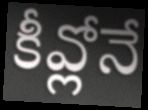
కీవ్లోనే